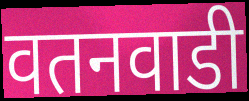
वतनवाडी